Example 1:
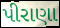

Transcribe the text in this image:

પીરાણા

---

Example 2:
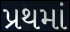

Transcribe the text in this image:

પ્રથમાં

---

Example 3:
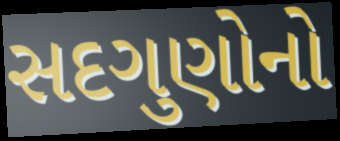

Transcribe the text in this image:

સદગુણોનો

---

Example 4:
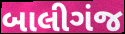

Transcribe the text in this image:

બાલીગંજ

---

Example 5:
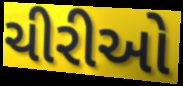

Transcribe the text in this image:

ચીરીઓ